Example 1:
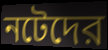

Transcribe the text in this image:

নটেদের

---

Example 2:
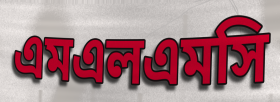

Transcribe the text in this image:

এমএলএমসি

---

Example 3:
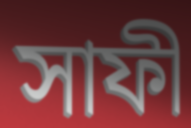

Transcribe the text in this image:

সাফী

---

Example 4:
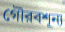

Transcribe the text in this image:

গৌরবশূন্য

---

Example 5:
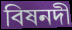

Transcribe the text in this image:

বিষনদী